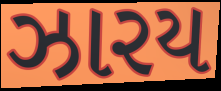
ઝારય